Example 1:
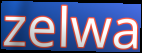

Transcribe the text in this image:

zelwa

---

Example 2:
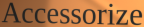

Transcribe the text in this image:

Accessorize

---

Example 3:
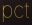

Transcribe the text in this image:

pct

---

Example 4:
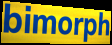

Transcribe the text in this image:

bimorph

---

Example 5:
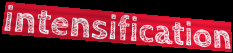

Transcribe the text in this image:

intensification